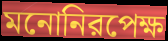
মনোনিরপেক্ষ